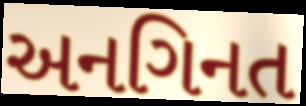
અનગિનત